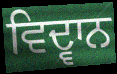
ਵਿਦ੍ਵਾਨ